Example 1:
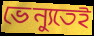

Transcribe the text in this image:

ভেন্যুতেই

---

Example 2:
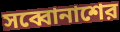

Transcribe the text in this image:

সব্বোনাশের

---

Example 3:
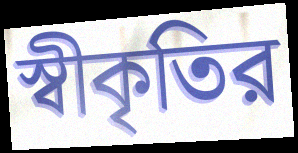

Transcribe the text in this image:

স্বীকৃতির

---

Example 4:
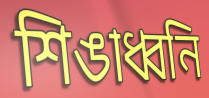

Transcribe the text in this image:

শিঙাধ্বনি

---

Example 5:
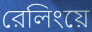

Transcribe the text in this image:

রেলিংয়ে